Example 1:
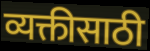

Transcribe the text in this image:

व्यक्तीसाठी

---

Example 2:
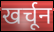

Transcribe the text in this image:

खर्चून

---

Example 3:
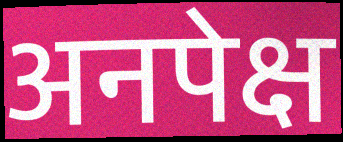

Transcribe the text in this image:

अनपेक्ष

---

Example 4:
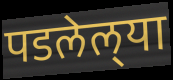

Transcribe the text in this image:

पडलेल्या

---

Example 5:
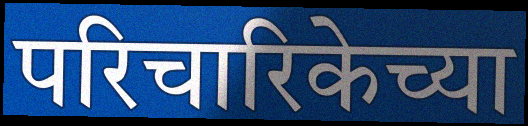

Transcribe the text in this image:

परिचारिकेच्या